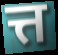
त्त